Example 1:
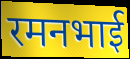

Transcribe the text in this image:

रमनभाई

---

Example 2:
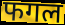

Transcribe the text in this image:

फगल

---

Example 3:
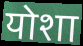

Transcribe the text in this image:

योशा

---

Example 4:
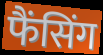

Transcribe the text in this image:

फैंसिंग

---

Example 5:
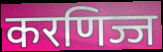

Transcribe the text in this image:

करणिज्ज